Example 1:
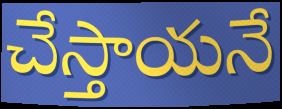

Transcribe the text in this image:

చేస్తాయనే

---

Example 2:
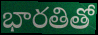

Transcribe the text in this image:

భారతితో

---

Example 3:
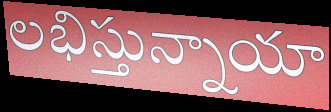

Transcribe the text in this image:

లభిస్తున్నాయా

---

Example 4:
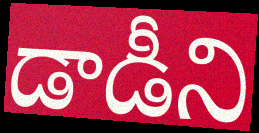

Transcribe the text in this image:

డాడీని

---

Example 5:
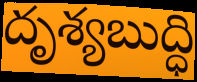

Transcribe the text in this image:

దృశ్యబుద్ధి